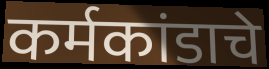
कर्मकांडाचे